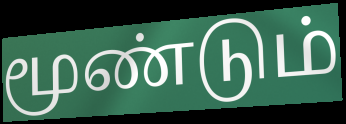
மூண்டும்